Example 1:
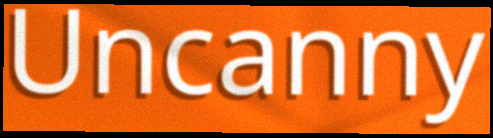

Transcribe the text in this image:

Uncanny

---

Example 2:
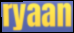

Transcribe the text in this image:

ryaan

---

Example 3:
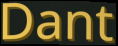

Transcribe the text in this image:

Dant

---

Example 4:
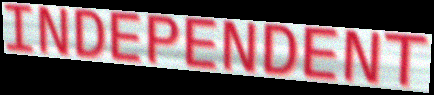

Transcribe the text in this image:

INDEPENDENT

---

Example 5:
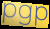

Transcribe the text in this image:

pgp